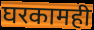
घरकामही